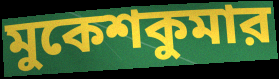
মুকেশকুমার